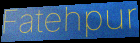
Fatehpur